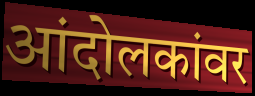
आंदोलकांवर